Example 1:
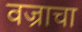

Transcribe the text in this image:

वज्राचा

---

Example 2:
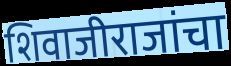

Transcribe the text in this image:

शिवाजीराजांचा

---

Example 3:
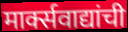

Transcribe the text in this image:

मार्क्सवाद्यांची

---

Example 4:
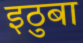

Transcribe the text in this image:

इठुबा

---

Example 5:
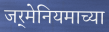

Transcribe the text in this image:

जर्मेनियमाच्या